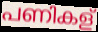
പണികള്